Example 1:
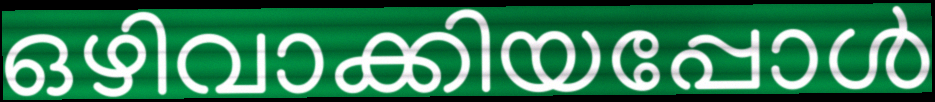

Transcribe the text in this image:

ഒഴിവാക്കിയപ്പോൾ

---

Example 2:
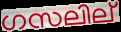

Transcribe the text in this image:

ഗസലില്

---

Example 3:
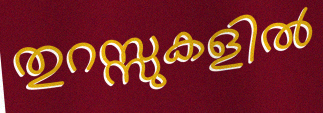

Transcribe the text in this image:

തുറസ്സുകളിൽ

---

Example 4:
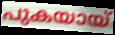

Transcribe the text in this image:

പുകയായ്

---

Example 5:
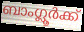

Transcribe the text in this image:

ബാംഗ്ലൂർക്ക്